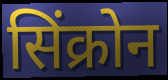
सिंक्रोन